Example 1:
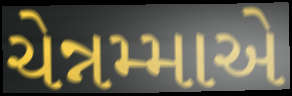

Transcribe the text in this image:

ચેન્નમ્માએ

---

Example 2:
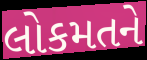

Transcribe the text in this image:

લોકમતને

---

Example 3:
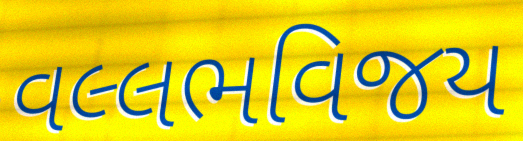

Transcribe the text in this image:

વલ્લભવિજય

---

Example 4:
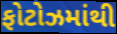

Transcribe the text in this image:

ફોટોઝમાંથી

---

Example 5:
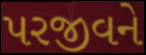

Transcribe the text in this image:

પરજીવને